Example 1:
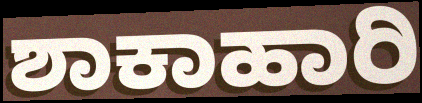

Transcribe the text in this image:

ಶಾಕಾಹಾರಿ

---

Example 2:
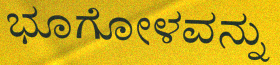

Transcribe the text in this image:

ಭೂಗೋಳವನ್ನು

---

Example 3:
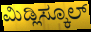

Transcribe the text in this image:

ಮಿಡ್ಲಿಸ್ಕೂಲ್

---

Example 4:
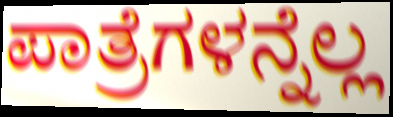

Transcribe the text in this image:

ಪಾತ್ರೆಗಳನ್ನೆಲ್ಲ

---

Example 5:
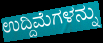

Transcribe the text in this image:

ಉದ್ದಿಮೆಗಳನ್ನು